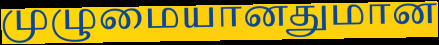
முழுமையானதுமான